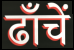
ढाँचें